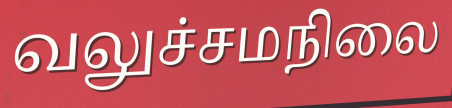
வலுச்சமநிலை